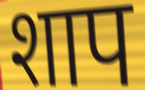
शाप